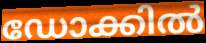
ഡോക്കിൽ